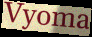
Vyoma